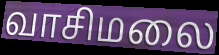
வாசிமலை